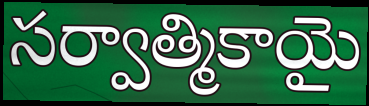
సర్వాత్మికాయై